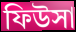
ফিউসা